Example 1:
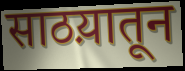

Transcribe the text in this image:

साठय़ातून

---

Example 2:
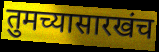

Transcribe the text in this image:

तुमच्यासारखंच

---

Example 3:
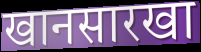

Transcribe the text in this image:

खानसारखा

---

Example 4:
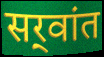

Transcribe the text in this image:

सर्वांत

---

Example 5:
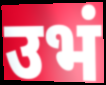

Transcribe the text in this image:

उभं